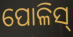
ପୋଳିସ୍